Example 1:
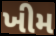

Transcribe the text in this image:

ખીમ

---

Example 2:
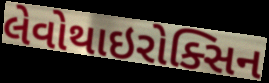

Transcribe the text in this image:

લેવોથાઇરોક્સિન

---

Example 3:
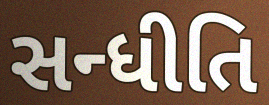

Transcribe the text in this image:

સન્ધીતિ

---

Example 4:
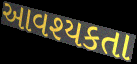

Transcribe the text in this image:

આવશ્યકતા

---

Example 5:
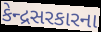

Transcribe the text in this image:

કેન્દ્રસરકારના